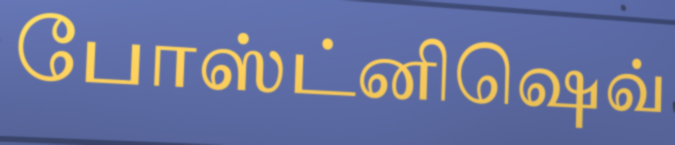
போஸ்ட்னிஷெவ்